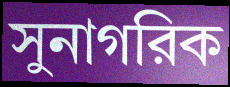
সুনাগরিক